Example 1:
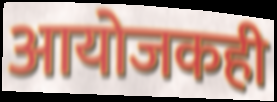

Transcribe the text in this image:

आयोजकही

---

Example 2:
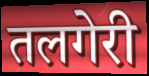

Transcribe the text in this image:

तलगेरी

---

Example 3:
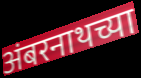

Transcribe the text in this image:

अंबरनाथच्या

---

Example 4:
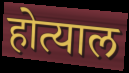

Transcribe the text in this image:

होत्याल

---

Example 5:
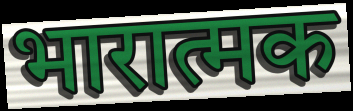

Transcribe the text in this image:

भारात्मक